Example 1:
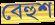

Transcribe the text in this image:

বেহুশ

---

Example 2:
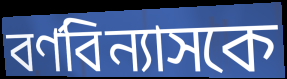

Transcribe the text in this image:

বর্ণবিন্যাসকে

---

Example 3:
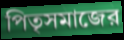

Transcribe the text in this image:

পিতৃসমাজের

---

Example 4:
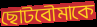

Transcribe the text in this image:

ছোটবৌমাকে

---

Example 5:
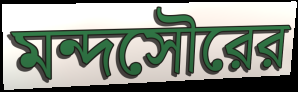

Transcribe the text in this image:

মন্দসৌরের